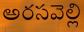
అరసవెల్లి